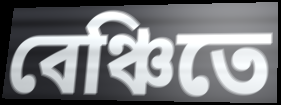
বেঞ্চিতে